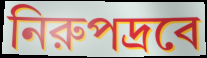
নিরুপদ্রবে